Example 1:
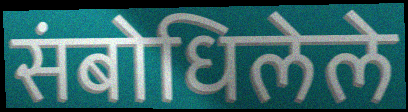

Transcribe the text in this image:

संबोधिलेले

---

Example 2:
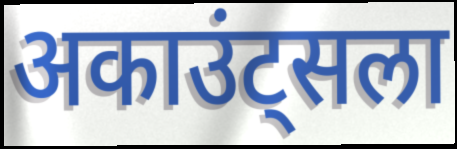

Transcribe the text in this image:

अकाउंट्सला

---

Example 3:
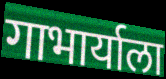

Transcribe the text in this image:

गाभार्याला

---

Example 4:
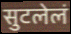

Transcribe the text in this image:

सुटलेलं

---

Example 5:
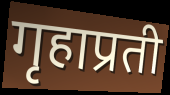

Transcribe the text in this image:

गृहाप्रती